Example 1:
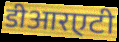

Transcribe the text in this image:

डीआरएटी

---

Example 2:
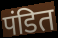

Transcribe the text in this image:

पंडित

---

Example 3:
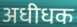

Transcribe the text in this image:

अधीधक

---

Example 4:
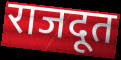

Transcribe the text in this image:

राजदूत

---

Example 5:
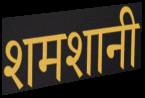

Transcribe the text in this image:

शमशानी